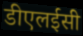
डीएलईसी